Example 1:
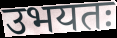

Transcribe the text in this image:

उभयतः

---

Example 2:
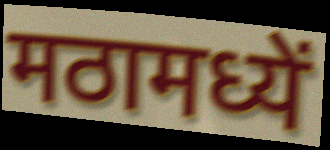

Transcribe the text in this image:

मठामध्यें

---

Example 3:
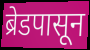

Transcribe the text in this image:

ब्रेडपासून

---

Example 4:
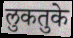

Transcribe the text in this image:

लुकतुके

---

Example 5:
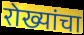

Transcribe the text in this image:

रोख्यांचा